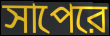
সাপেরে